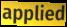
applied